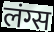
लंग्स